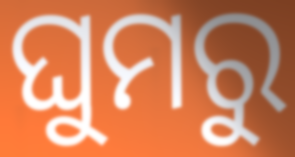
ଘୁମରୁ